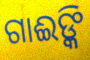
ଗାଈଙ୍କି